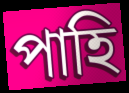
পাহি